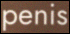
penis